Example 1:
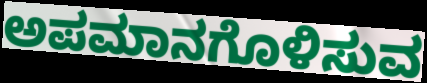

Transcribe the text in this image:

ಅಪಮಾನಗೊಳಿಸುವ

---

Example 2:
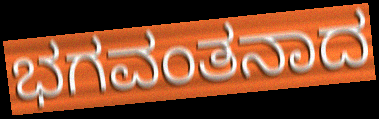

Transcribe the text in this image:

ಭಗವಂತನಾದ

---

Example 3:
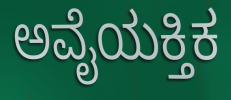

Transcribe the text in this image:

ಅವೈಯಕ್ತಿಕ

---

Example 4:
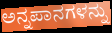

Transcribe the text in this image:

ಅನ್ನಪಾನಗಳನ್ನು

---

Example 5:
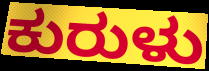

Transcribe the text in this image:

ಕುರುಳು